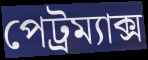
পেট্রম্যাক্স